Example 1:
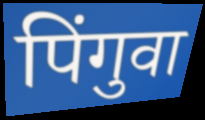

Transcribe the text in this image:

पिंगुवा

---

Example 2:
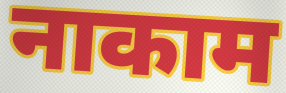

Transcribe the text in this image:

नाकाम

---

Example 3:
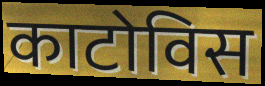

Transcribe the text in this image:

काटोविस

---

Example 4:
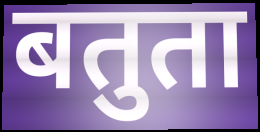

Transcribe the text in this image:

बतुता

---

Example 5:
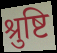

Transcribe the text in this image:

श्रुष्टि